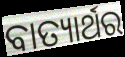
ବାତ୍ୟାର୍ଥର